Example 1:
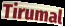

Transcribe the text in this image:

Tirumal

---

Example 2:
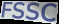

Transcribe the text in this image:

FSSC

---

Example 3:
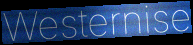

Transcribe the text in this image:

Westernise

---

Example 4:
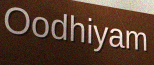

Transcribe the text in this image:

Oodhiyam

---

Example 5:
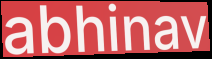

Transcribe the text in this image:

abhinav